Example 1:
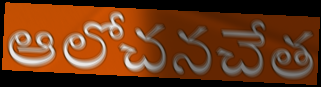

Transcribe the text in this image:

ఆలోచనచేత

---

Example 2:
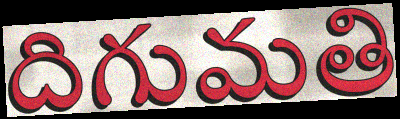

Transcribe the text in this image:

దిగుమతి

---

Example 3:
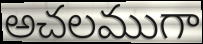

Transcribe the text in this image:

అచలముగా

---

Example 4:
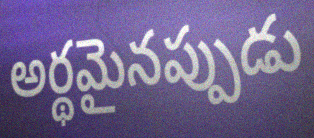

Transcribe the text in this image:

అర్థమైనప్పుడు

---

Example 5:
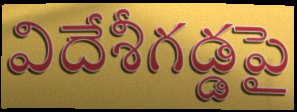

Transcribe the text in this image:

విదేశీగడ్డపై